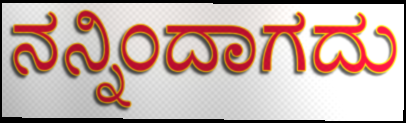
ನನ್ನಿಂದಾಗದು